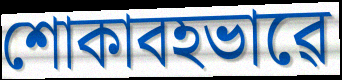
শোকাবহভাৱে